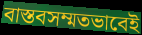
বাস্তবসম্মতভাবেই